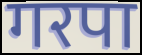
गरपा